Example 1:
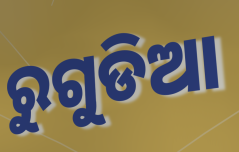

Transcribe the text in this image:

ରୁଗୁଡିଆ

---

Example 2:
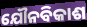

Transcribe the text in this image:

ଯୌନବିକାଶ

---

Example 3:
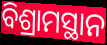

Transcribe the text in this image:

ବିଶ୍ରାମସ୍ଥାନ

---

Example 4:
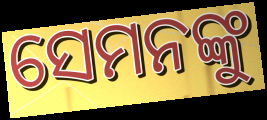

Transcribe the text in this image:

ସେମନଙ୍କୁ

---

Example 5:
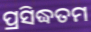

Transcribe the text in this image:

ପ୍ରସିଦ୍ଧତମ